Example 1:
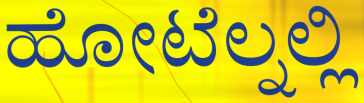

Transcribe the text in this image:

ಹೋಟೆಲ್ನಲ್ಲಿ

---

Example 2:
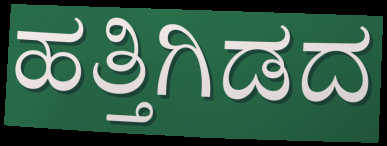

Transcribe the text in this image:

ಹತ್ತಿಗಿಡದ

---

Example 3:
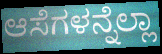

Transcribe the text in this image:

ಆಸೆಗಳನ್ನೆಲ್ಲಾ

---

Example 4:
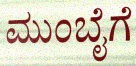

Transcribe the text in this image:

ಮುಂಬೈಗೆ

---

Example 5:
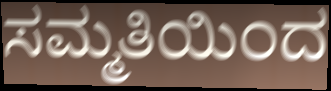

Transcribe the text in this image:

ಸಮ್ಮತಿಯಿಂದ